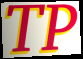
TP